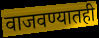
वाजवण्यातही